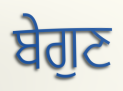
ਬੇਗੁਣ